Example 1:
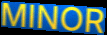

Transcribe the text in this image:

MINOR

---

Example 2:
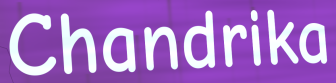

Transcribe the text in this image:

Chandrika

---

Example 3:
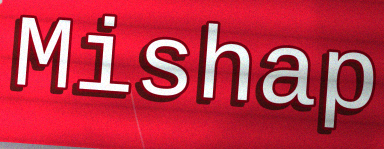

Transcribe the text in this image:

Mishap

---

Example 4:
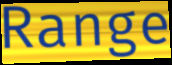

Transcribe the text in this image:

Range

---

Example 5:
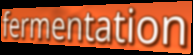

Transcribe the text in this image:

fermentation